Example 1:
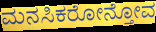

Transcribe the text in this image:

ಮನಸಿಕರೋನ್ತೋವ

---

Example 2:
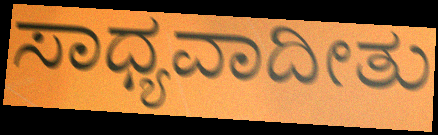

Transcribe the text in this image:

ಸಾಧ್ಯವಾದೀತು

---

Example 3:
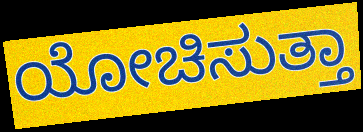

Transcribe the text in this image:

ಯೋಚಿಸುತ್ತಾ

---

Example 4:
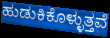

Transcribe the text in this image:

ಹುಡುಕಿಕೊಳ್ಳುತ್ತವೆ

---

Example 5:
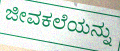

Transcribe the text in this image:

ಜೀವಕಲೆಯನ್ನು